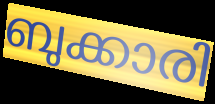
ബുക്കാരി